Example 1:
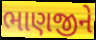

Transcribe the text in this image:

ભાણજીને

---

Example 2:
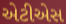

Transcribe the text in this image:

એટીએસ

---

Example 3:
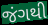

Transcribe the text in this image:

જંગથી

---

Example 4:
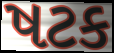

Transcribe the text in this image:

ષટક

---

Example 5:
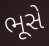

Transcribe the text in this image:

ભૂસે